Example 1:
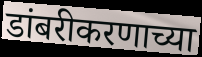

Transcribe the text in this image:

डांबरीकरणाच्या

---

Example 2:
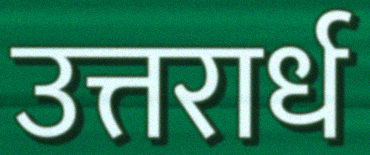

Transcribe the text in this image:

उत्तरार्ध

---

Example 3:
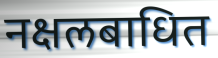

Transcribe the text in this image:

नक्षलबाधित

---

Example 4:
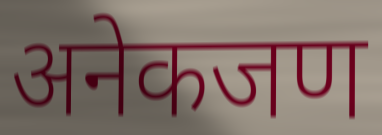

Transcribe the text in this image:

अनेकजण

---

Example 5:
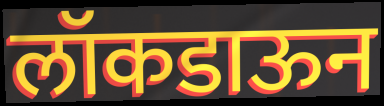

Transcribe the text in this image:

लॉकडाऊन